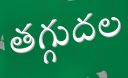
తగ్గుదల